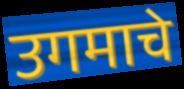
उगमाचे